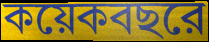
কয়েকবছরে